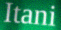
Itani